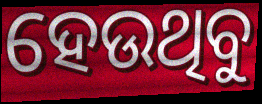
ହେଉଥିବୁ